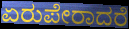
ಏರುಪೇರಾದರೆ